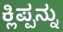
ಕ್ಲಿಪ್ಪನ್ನು